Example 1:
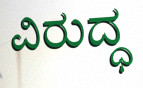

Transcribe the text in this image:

ವಿರುದ್ಧ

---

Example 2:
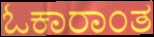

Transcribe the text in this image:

ಓಕಾರಾಂತ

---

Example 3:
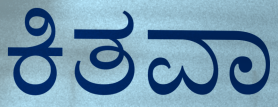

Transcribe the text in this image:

ಕಿತವಾ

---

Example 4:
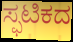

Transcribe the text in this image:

ಸ್ಫಟಿಕದ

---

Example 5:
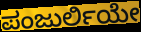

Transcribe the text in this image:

ಪಂಜುರ್ಲಿಯೇ